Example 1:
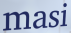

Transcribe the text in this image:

masi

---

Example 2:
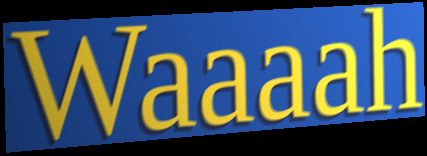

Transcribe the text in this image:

Waaaah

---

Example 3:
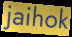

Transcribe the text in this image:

jaihok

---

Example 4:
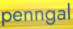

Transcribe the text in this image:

penngal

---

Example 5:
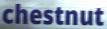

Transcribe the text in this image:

chestnut